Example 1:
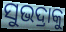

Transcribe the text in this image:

ସୁଭଦ୍ରାକୁ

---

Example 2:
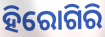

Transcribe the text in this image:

ହିରୋଗିରି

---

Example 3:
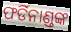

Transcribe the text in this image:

ଫର୍ଡିନାଣ୍ଡଙ୍କ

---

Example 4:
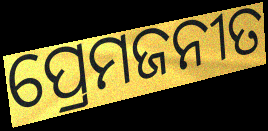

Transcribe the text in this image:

ପ୍ରେମଜନୀତ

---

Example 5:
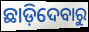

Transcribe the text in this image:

ଛାଡ଼ିଦେବାରୁ